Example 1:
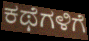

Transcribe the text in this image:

ಕಥೆಗಳಿಗೆ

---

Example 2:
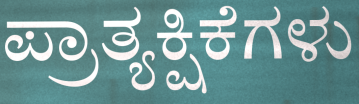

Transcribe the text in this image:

ಪ್ರಾತ್ಯಕ್ಷಿಕೆಗಳು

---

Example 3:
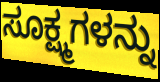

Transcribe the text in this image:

ಸೂಕ್ಷ್ಮಗಳನ್ನು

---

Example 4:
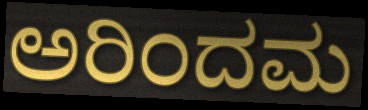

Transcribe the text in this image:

ಅರಿಂದಮ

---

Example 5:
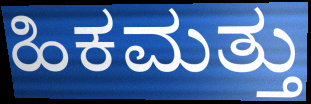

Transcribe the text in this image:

ಹಿಕಮತ್ತು